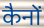
कैनों